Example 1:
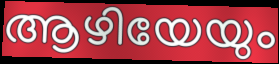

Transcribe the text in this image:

ആഴിയേയും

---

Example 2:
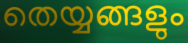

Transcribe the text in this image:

തെയ്യങ്ങളും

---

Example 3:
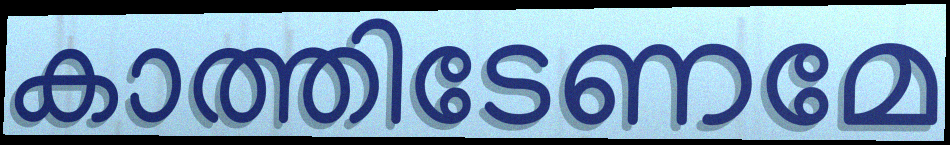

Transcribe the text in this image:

കാത്തിടേണമേ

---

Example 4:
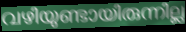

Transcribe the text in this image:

വഴിയുണ്ടായിരുന്നില്ല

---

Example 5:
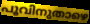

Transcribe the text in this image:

പൂവിനുതാഴെ